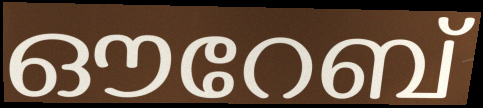
ഔറേബ്